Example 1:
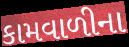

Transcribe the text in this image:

કામવાળીના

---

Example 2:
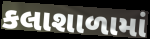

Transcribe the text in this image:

કલાશાળામાં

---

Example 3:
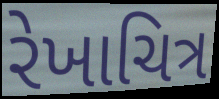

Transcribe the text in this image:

રેખાચિત્ર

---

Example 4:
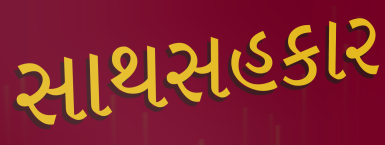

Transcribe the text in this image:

સાથસહકાર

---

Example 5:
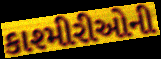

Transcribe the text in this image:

કાશ્મીરીઓની